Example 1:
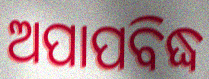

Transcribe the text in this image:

ଅପାପବିଦ୍ଧ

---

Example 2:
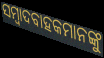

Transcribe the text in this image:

ସମ୍ବାଦବାହକମାନଙ୍କୁ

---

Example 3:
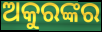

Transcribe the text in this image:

ଅକୁରଙ୍କର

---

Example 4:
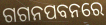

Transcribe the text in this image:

ଗଗନପବନରେ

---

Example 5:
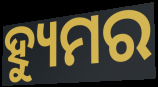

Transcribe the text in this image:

ହ୍ୟୁମର